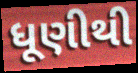
ધૂણીથી